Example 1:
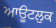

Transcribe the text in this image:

ਆਊਟਲੁਕ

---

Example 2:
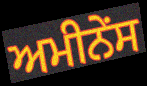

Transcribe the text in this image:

ਅਮੀਨੇਂਸ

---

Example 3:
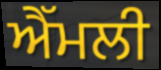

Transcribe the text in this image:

ਐੱਮਲੀ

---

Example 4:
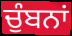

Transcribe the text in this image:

ਚੁੰਬਨਾਂ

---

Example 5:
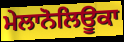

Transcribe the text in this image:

ਮੇਲਾਨੋਲਿਊਕਾ